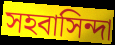
সহবাসিন্দা